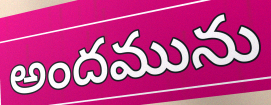
అందమును